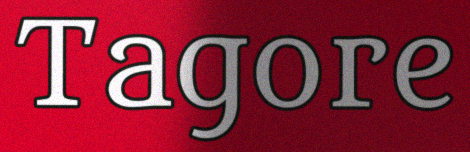
Tagore